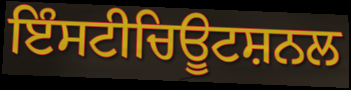
ਇੰਸਟੀਚਿਊਟਸ਼ਨਲ